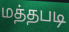
மத்தபடி